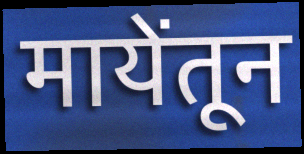
मायेंतून